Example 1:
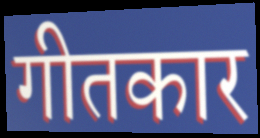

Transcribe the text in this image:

गीतकार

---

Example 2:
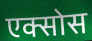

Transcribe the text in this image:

एक्सोस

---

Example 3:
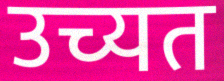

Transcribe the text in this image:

उच्यत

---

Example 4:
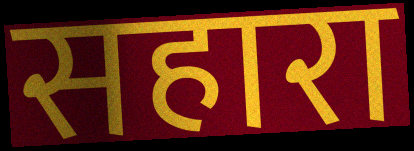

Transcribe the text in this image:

सहारा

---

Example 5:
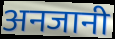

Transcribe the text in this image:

अनजानी